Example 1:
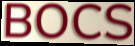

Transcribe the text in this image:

BOCS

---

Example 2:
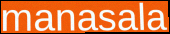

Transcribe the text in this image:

manasala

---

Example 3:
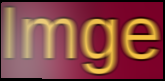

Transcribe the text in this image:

Imge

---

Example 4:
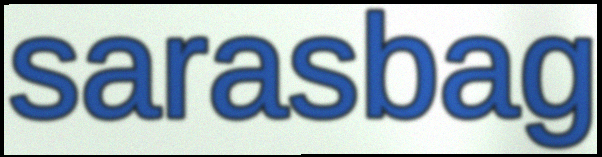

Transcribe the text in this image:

sarasbag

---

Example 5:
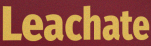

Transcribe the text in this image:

Leachate